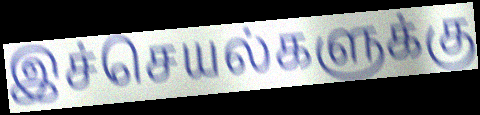
இச்செயல்களுக்கு